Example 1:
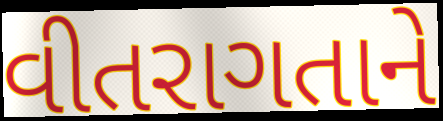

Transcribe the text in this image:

વીતરાગતાને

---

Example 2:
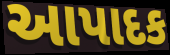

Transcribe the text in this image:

આપાદક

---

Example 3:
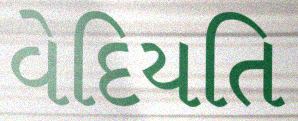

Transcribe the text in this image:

વેદિયતિ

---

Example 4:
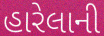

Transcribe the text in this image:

હારેલાની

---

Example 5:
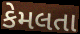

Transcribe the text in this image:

કેમલતા